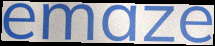
emaze